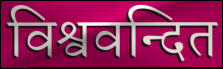
विश्ववन्दित